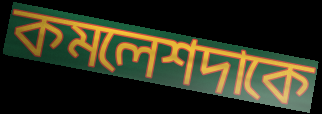
কমলেশদাকে